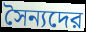
সৈন্যদের